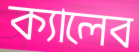
ক্যালেব